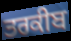
ਤਰਕੀਬ